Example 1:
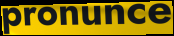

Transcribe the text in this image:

pronunce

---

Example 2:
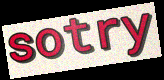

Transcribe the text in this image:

sotry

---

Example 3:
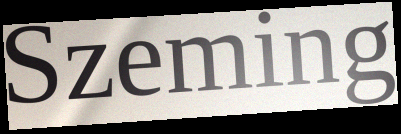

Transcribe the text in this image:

Szeming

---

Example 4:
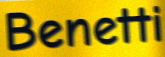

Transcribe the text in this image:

Benetti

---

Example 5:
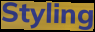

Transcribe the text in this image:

Styling